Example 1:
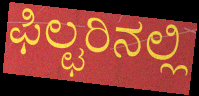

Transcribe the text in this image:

ಫಿಲ್ಟರಿನಲ್ಲಿ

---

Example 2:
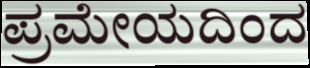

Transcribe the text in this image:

ಪ್ರಮೇಯದಿಂದ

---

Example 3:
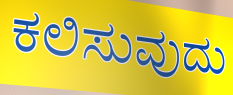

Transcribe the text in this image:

ಕಲಿಸುವುದು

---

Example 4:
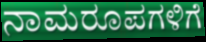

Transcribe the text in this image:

ನಾಮರೂಪಗಳಿಗೆ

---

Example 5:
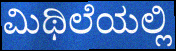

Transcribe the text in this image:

ಮಿಥಿಲೆಯಲ್ಲಿ